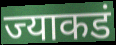
ज्याकडं